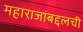
महाराजांबद्दलची